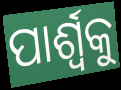
ପାର୍ଶ୍ଵକୁ